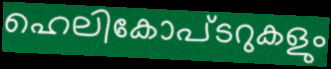
ഹെലികോപ്ടറുകളും